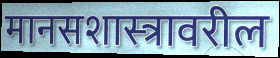
मानसशास्त्रावरील